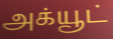
அக்யூட்